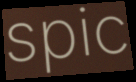
spic